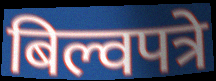
बिल्वपत्रे